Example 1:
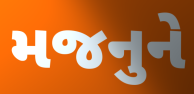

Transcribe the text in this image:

મજનુને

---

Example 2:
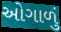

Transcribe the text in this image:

ઓગાળું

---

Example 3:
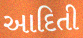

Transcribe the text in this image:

આદિતી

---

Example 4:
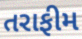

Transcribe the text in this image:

તરાફીમ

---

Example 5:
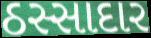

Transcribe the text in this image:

ઠસ્સાદાર